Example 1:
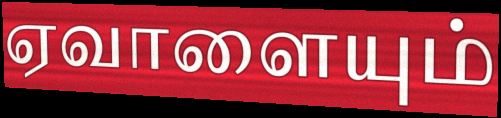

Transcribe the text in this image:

ஏவாளையும்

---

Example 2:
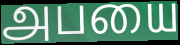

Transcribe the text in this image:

அபயை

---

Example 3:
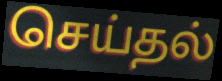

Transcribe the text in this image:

செய்தல்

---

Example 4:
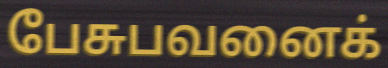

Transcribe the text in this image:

பேசுபவனைக்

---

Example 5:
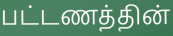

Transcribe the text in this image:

பட்டணத்தின்